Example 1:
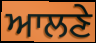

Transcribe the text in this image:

ਆਲਣੇ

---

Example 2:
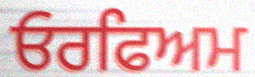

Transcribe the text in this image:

ਓਰਫਿਅਮ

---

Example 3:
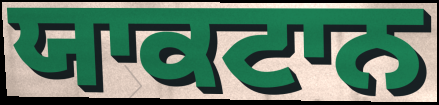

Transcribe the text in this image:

ਯਾਕਟਾਨ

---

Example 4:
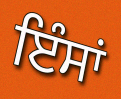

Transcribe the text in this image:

ਇੰਸਾਂ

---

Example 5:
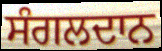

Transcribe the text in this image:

ਸੰਗਲਦਾਨ